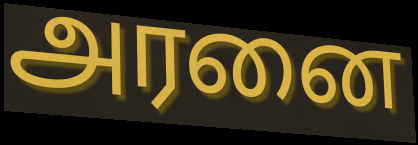
அரனை